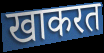
खाकरत